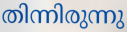
തിന്നിരുന്നു